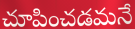
చూపించడమనే